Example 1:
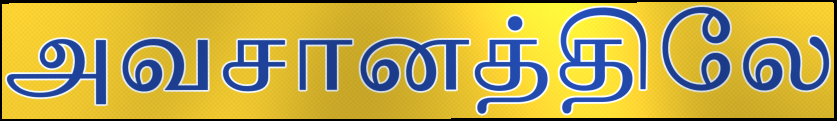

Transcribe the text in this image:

அவசானத்திலே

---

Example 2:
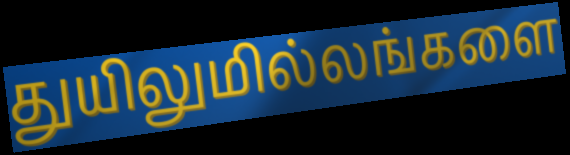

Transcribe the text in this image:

துயிலுமில்லங்களை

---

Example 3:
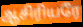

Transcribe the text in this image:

ஆசிரியரே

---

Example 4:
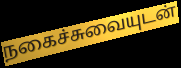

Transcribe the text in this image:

நகைச்சுவையுடன்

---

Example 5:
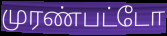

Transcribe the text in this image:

முரண்பட்டோ